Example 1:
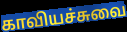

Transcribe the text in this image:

காவியச்சுவை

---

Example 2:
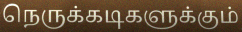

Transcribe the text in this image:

நெருக்கடிகளுக்கும்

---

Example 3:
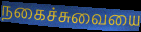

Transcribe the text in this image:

நகைச்சுவையை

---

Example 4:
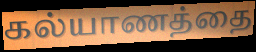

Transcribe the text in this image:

கல்யாணத்தை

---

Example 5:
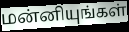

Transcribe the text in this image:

மன்னியுங்கள்